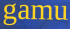
gamu